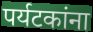
पर्यटकांना